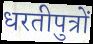
धरतीपुत्रों